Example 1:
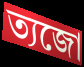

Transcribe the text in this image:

ত্যজো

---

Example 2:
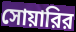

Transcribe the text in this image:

সোয়ারির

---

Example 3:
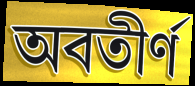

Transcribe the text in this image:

অবতীর্ণ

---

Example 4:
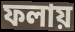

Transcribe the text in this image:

ফলায়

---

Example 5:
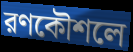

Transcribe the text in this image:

রণকৌশলে